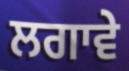
ਲਗਾਵੇ